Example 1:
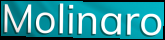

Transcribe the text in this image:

Molinaro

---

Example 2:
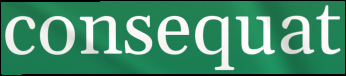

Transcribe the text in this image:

consequat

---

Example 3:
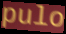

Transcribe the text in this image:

pulo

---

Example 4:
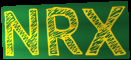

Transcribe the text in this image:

NRX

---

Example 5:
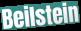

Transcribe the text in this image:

Beilstein